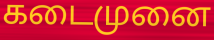
கடைமுனை